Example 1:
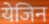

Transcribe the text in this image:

येजिन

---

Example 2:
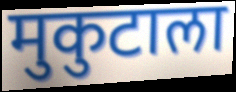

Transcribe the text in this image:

मुकुटाला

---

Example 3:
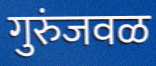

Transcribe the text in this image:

गुरुंजवळ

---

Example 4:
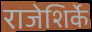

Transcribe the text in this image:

राजेशिर्के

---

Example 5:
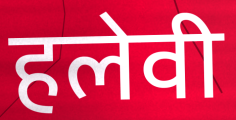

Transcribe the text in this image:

हलेवी